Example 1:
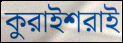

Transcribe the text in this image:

কুরাইশরাই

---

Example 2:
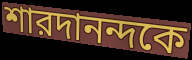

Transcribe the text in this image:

শারদানন্দকে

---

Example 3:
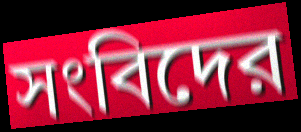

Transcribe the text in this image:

সংবিদের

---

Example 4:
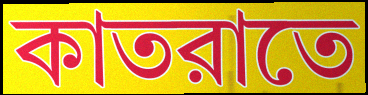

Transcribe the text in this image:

কাতরাতে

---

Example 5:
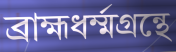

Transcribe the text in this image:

ব্রাহ্মধর্ম্মগ্রন্থে